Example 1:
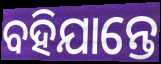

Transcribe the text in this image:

ବହିଯାନ୍ତେ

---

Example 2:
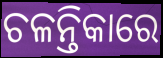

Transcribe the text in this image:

ଚଳନ୍ତିକାରେ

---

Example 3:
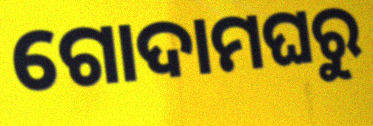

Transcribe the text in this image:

ଗୋଦାମଘରୁ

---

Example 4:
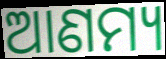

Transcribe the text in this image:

ଆଣମ୍ୟ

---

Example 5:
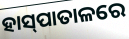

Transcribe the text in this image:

ହାସ୍‍ପାତାଳରେ